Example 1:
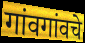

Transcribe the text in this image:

गांवगांवचे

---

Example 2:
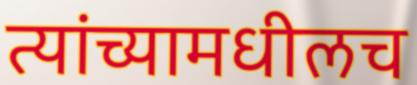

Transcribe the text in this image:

त्यांच्यामधीलच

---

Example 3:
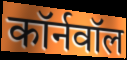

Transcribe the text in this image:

कॉर्नवॉल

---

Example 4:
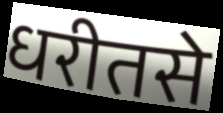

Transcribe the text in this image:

धरीतसे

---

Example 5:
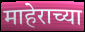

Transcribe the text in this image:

माहेराच्या